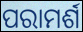
ପରାମର୍ଶ